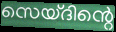
സെയ്ദിന്റെ